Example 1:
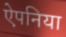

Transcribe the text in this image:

ऐपनिया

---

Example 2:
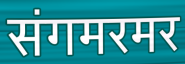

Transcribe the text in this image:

संगमरमर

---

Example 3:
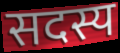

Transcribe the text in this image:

सदस्‍य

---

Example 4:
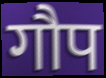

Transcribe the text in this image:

गौप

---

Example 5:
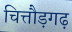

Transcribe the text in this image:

चित्तौड़गढ़